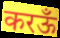
करऊँ